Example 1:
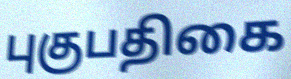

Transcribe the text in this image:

புகுபதிகை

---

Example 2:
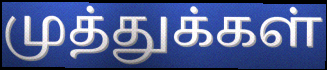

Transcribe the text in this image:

முத்துக்கள்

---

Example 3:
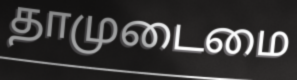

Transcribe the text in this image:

தாமுடைமை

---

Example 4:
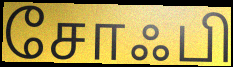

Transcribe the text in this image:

சோஃபி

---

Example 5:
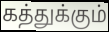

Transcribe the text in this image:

கத்துக்கும்